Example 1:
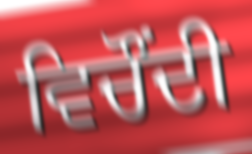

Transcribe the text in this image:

ਵਿਚੌਂਦੀ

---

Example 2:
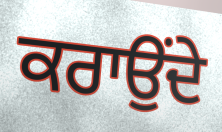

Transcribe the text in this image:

ਕਰਾਉੰਦੇ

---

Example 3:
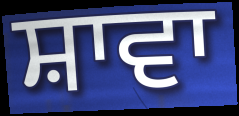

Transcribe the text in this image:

ਸ਼ਾਵਾ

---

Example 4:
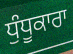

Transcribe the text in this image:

ਧੁੰਧੂਕਾਰਾ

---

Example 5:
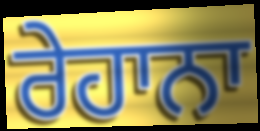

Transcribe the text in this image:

ਰੇਹਾਨਾ